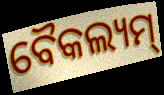
ବୈକଲ୍ୟମ୍